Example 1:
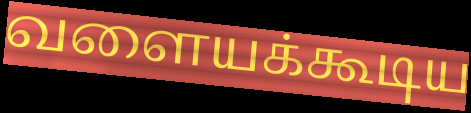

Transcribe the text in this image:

வளையக்கூடிய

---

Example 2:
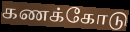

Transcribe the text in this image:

கணக்கோடு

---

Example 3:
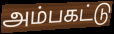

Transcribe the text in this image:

அம்பகட்டு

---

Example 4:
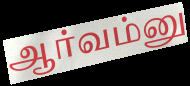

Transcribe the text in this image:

ஆர்வம்னு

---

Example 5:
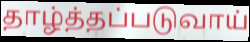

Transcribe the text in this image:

தாழ்த்தப்படுவாய்